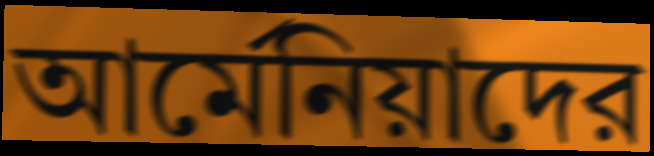
আর্মেনিয়াদের